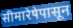
सीमारेषेपासून